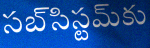
సబ్‌సిస్టమ్‌కు